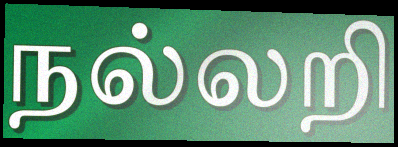
நல்லறி